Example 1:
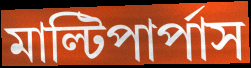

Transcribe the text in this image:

মাল্টিপার্পাস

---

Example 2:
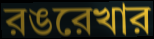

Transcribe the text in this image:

রঙরেখার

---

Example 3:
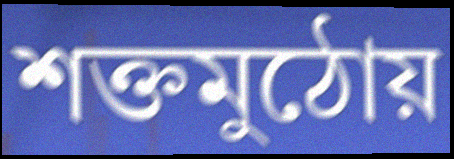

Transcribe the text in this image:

শক্তমুঠোয়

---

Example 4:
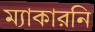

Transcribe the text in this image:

ম্যাকারনি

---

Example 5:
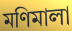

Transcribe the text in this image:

মণিমালা